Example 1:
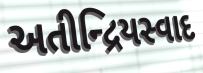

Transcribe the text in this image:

અતીન્દ્રિયસ્વાદ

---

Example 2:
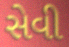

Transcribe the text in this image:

સેવી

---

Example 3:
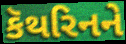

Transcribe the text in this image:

કૅથરિનને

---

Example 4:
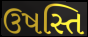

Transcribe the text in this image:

ઉષસ્તિ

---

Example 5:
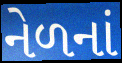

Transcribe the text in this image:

નેળનાં